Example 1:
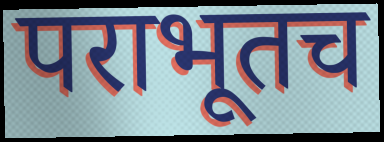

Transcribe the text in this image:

पराभूतच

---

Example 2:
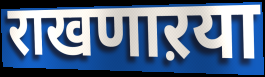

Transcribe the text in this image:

राखणाऱया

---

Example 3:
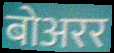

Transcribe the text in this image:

बोअरर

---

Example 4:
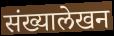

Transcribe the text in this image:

संख्यालेखन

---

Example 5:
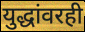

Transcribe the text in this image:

युद्धांवरही